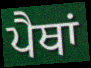
ਪੈਥਾਂ